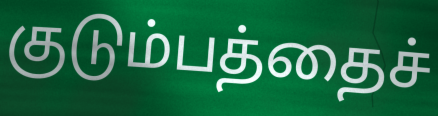
குடும்பத்தைச்